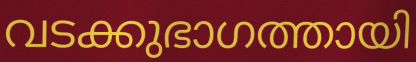
വടക്കുഭാഗത്തായി